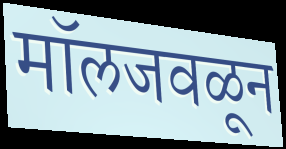
मॉलजवळून